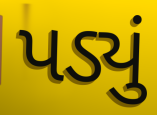
પડ્યું